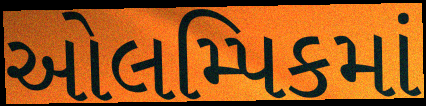
ઓલમ્પિકમાં